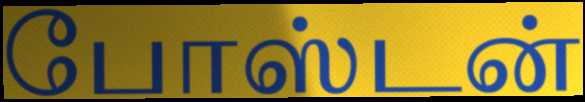
போஸ்டன்